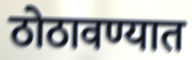
ठोठावण्यात